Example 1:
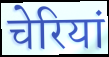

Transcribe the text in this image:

चेरियां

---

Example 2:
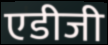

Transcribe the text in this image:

एडीजी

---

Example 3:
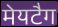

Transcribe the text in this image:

मेयटैग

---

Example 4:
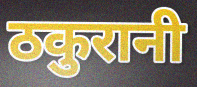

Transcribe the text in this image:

ठकुरानी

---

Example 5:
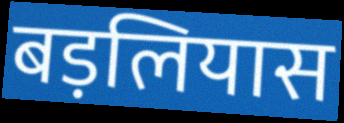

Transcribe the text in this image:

बड़लियास